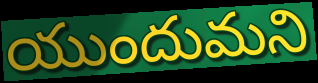
యుందుమని